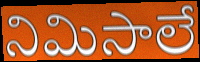
నిమిసాలే